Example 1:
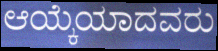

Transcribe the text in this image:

ಆಯ್ಕೆಯಾದವರು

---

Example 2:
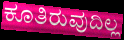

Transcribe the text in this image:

ಕೂತಿರುವುದಿಲ್ಲ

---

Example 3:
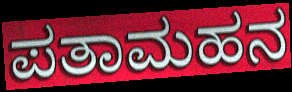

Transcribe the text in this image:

ಪತಾಮಹನ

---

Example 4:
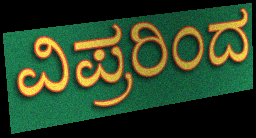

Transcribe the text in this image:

ವಿಪ್ರರಿಂದ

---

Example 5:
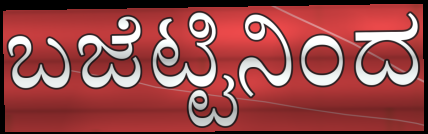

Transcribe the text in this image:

ಬಜೆಟ್ಟಿನಿಂದ